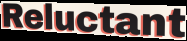
Reluctant